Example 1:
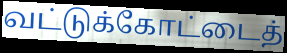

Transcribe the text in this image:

வட்டுக்கோட்டைத்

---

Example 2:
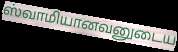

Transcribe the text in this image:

ஸ்வாமியானவனுடைய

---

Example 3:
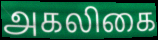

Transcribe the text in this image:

அகலிகை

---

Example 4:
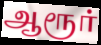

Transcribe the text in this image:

ஆரூர்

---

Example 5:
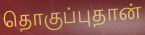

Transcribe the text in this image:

தொகுப்புதான்